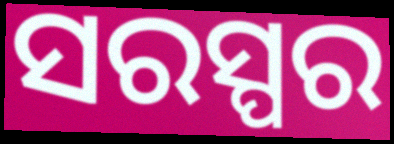
ସରସ୍ପର